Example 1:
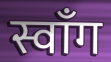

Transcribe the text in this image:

स्वाँग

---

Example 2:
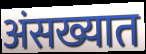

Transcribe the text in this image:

अंसख्यात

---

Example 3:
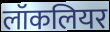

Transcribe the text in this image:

लॉकलियर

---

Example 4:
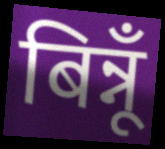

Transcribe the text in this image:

बिन्नूँ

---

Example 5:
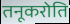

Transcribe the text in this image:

तनूकरोति